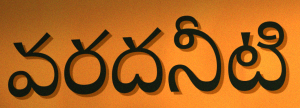
వరదనీటి